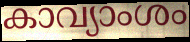
കാവ്യാംശം